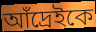
আঁদ্রেইকে